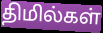
திமில்கள்